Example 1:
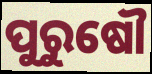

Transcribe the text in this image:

ପୁରୁଷୌ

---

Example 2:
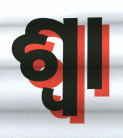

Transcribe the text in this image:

ଶ୍ୱା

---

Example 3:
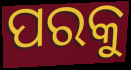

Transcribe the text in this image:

ପରକୁ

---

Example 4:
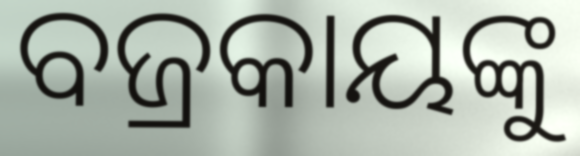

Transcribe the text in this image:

ବଜ୍ରକାୟଙ୍କୁ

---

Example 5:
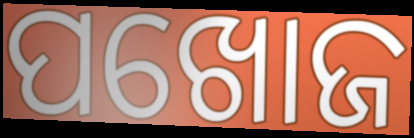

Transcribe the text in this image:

ପଖୋଜ